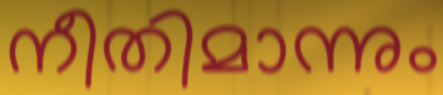
നീതിമാന്നും